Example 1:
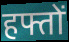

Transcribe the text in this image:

हफ्तों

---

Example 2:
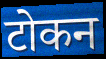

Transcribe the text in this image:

टोकन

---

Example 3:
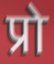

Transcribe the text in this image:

प्रो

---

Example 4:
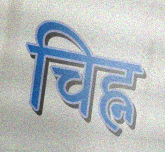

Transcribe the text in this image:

चिह्न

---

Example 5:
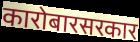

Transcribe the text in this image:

कारोबारसरकार